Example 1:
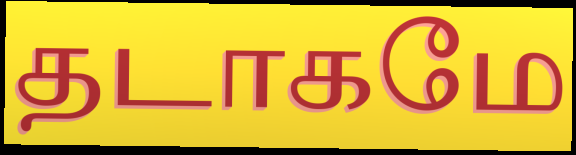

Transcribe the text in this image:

தடாகமே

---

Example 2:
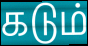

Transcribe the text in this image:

கடும்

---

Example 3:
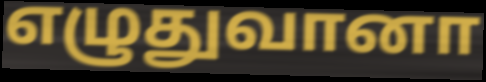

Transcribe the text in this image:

எழுதுவானா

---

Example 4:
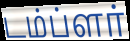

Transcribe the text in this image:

டம்ப்ளர்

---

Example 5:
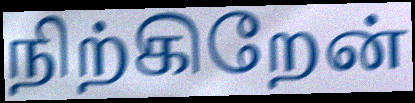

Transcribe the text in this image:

நிற்கிறேன்